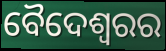
ବୈଦେଶ୍ୱରର